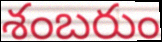
శంబరుం